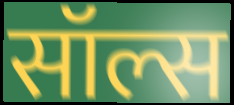
सॉल्स